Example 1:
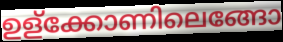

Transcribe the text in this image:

ഉള്ക്കോണിലെങ്ങോ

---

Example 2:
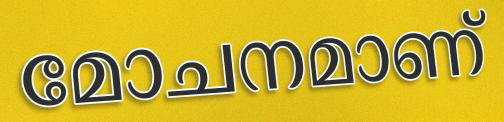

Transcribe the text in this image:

മോചനമാണ്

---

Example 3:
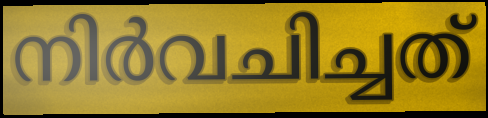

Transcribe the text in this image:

നിർവചിച്ചത്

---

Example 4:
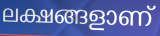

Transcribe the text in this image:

ലക്ഷങ്ങളാണ്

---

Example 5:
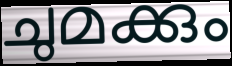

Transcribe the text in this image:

ചുമക്കും